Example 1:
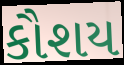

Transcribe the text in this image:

કૌશય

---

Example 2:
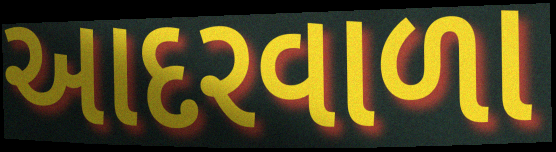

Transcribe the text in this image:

આદરવાળા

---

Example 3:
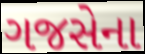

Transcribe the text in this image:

ગજસેના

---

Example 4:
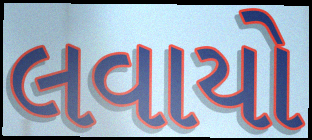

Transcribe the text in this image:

લવાયો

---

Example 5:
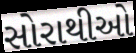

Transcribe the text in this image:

સોરાથીઓ